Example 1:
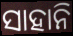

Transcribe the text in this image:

ସାହାନି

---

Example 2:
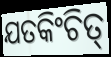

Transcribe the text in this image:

ଯତକିଂଚିତ୍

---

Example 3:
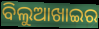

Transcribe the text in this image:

ବିଲୁଆଖାଇର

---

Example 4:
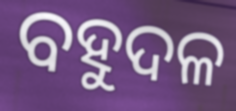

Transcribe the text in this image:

ବହୁଦଳ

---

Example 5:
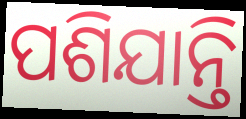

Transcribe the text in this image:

ପଶିଯାନ୍ତି